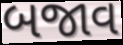
બજાવ